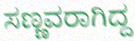
ಸಣ್ಣವರಾಗಿದ್ದ